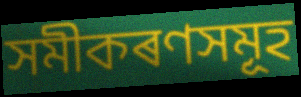
সমীকৰণসমূহ